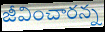
జీవించారన్న